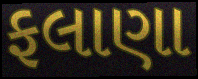
ફલાણા